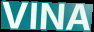
VINA